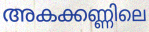
അകക്കണ്ണിലെ